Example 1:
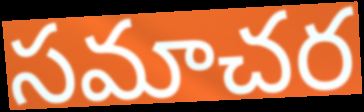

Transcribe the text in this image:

సమాచర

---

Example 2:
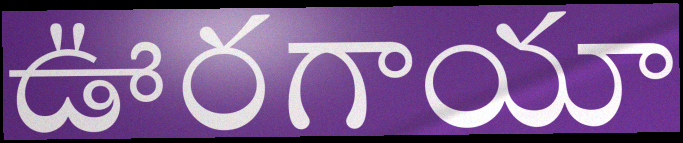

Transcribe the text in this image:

ఊరగాయా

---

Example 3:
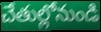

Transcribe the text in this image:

చేతుల్లోనుండి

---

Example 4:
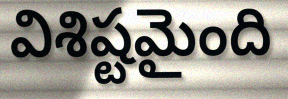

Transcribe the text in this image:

విశిష్టమైంది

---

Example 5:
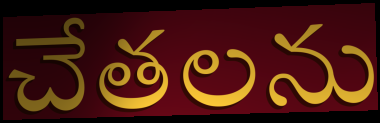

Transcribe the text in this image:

చేతలను